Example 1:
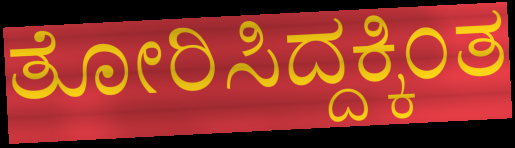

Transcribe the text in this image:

ತೋರಿಸಿದ್ದಕ್ಕಿಂತ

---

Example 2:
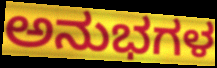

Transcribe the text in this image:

ಅನುಭಗಳ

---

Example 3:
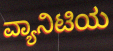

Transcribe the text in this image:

ವ್ಯಾನಿಟಿಯ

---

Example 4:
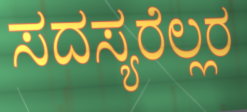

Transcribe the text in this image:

ಸದಸ್ಯರೆಲ್ಲರ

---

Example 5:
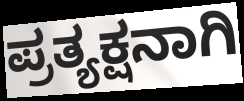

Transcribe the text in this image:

ಪ್ರತ್ಯಕ್ಷನಾಗಿ